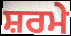
ਸ਼ਰਮੇ